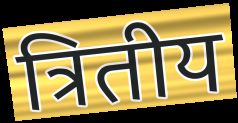
त्रितीय